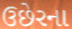
ઉછેરના